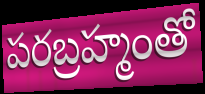
పరబ్రహ్మంతో